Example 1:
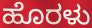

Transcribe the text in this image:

ಹೊರಳು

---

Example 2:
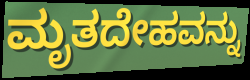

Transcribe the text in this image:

ಮೃತದೇಹವನ್ನು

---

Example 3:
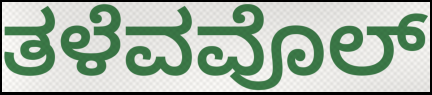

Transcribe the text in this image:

ತಳೆವವೊಲ್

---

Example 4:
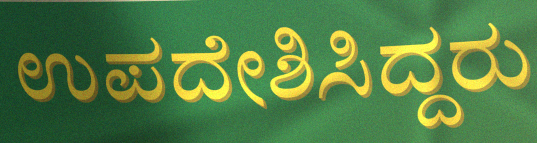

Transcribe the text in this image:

ಉಪದೇಶಿಸಿದ್ದರು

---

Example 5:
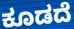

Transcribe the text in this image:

ಕೂಡದೆ